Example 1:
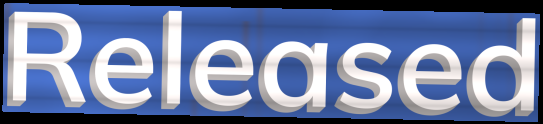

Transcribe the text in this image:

Released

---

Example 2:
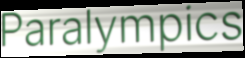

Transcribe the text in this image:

Paralympics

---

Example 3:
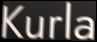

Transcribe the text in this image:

Kurla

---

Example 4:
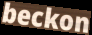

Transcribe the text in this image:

beckon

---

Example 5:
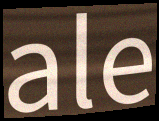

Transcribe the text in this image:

ale